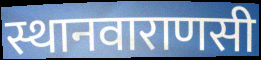
स्थानवाराणसी